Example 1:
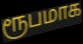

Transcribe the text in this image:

ரூபமாக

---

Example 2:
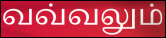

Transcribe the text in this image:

வவ்வலும்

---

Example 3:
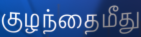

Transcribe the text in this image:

குழந்தைமீது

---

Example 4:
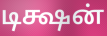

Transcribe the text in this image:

டிக்ஷன்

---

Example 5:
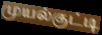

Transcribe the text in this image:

முயல்குட்டி